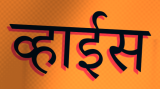
व्हाईस